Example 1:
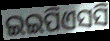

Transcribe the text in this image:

ଇଇପିଏସସି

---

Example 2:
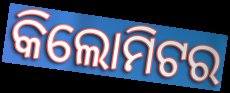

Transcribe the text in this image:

କିଲୋମିଟର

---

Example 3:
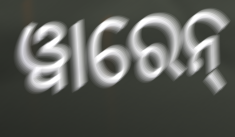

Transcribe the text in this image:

ୱାରେନ୍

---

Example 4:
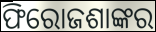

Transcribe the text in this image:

ଫିରୋଜଶାଙ୍କର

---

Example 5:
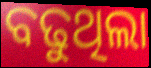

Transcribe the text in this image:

ବଢୁଥିଲା